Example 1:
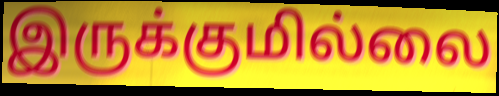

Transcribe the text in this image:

இருக்குமில்லை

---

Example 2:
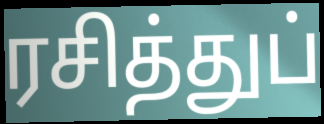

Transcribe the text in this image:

ரசித்துப்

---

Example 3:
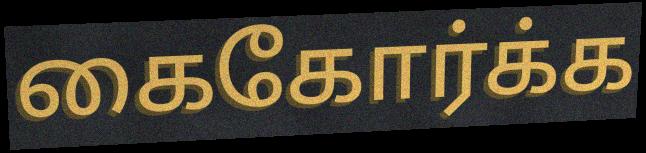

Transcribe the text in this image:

கைகோர்க்க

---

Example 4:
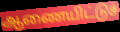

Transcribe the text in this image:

ஆணையிட்டுச்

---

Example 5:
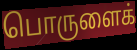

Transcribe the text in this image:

பொருளைக்